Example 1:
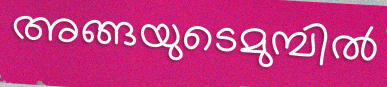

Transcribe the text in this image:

അങ്ങയുടെമുമ്പിൽ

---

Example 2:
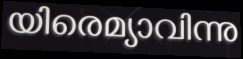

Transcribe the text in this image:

യിരെമ്യാവിന്നു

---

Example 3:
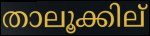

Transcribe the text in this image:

താലൂക്കില്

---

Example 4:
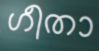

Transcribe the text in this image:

ഗീതാ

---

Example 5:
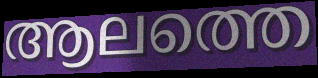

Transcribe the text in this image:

ആലത്തെ